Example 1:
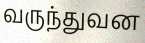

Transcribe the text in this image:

வருந்துவன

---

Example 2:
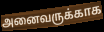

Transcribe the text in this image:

அனைவருக்காக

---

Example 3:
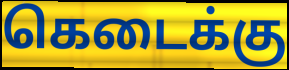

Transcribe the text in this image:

கெடைக்கு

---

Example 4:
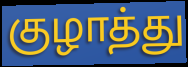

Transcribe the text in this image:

குழாத்து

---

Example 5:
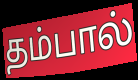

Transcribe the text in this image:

தம்பால்